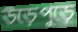
উড়েপুড়ে